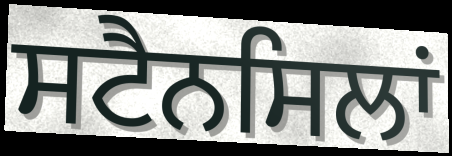
ਸਟੈਨਸਿਲਾਂ